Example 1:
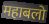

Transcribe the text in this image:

महाबलो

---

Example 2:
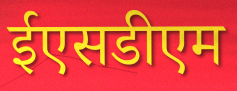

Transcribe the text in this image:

ईएसडीएम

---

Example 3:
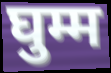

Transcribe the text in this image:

घुम्म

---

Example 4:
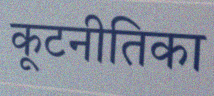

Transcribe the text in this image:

कूटनीतिका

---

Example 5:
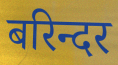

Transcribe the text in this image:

बरिन्दर